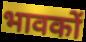
भावकों